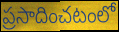
ప్రసాదించటంలో